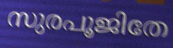
സുരപൂജിതേ